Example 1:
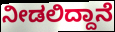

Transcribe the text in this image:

ನೀಡಲಿದ್ದಾನೆ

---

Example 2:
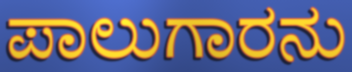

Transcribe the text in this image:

ಪಾಲುಗಾರನು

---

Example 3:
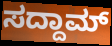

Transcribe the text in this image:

ಸದ್ದಾಮ್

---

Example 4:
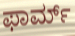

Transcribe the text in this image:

ಫಾರ್ಮ್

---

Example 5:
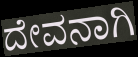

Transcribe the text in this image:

ದೇವನಾಗಿ